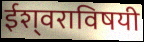
ईश्वराविषयी